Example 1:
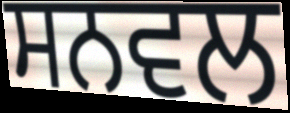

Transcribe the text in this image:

ਸਨਵਲ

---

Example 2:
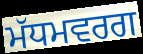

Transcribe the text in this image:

ਮੱਧਮਵਰਗ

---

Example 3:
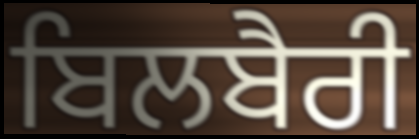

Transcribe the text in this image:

ਬਿਲਬੈਰੀ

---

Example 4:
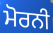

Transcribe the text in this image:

ਮੋਰਨੀ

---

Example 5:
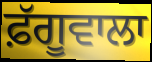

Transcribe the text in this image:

ਫ਼ੱਗੂਵਾਲਾ